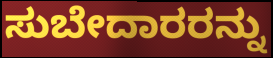
ಸುಬೇದಾರರನ್ನು